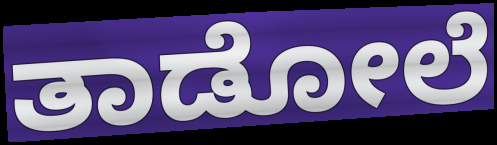
ತಾಡೋಲೆ